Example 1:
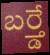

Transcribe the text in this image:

బర్త్డే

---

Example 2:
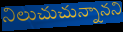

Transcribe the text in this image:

నిలుచుచున్నానని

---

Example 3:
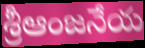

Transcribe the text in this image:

శ్రీఆంజనేయ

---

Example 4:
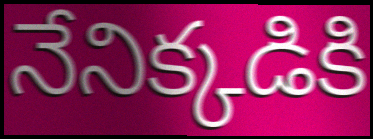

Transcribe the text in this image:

నేనిక్కడికి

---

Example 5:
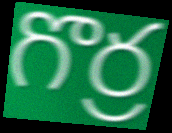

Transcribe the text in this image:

గొర్ర